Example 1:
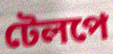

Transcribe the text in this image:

টেলপে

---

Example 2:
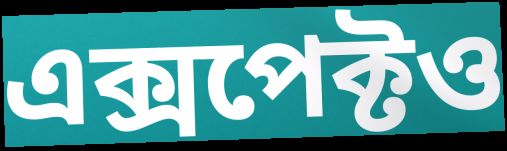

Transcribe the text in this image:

এক্সপেক্টও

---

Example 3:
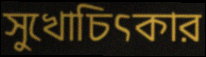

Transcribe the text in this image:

সুখোচিৎকার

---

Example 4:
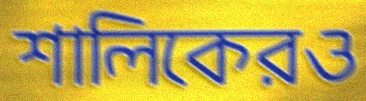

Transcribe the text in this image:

শালিকেরও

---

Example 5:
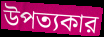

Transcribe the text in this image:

উপত্যকার